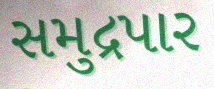
સમુદ્રપાર